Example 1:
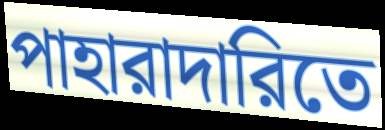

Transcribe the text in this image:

পাহারাদারিতে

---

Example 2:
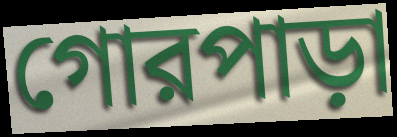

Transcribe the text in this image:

গোরপাড়া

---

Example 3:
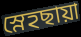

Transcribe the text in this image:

স্নেহছায়া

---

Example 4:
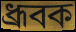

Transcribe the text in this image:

ধ্রূবক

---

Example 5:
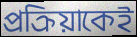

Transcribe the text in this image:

প্রক্রিয়াকেই